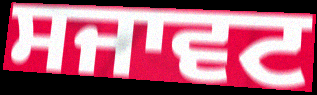
ਸਜਾਵਟ